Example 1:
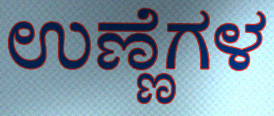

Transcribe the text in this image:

ಉಣ್ಣೆಗಳ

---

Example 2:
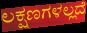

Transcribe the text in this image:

ಲಕ್ಷಣಗಳಲ್ಲದೆ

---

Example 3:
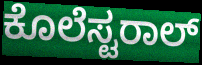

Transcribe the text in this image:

ಕೊಲೆಸ್ಟರಾಲ್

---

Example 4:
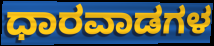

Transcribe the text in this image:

ಧಾರವಾಡಗಳ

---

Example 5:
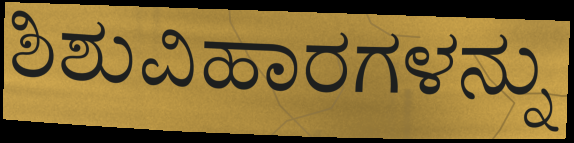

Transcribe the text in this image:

ಶಿಶುವಿಹಾರಗಳನ್ನು